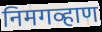
निमगव्हाण